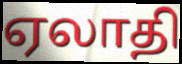
ஏலாதி